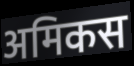
अमिकस